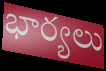
భార్యలు